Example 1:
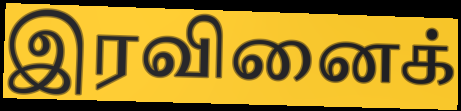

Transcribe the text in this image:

இரவினைக்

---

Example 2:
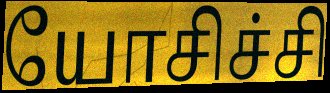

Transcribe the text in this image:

யோசிச்சி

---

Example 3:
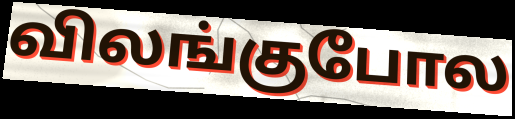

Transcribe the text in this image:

விலங்குபோல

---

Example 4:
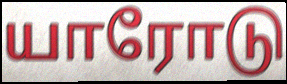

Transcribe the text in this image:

யாரோடு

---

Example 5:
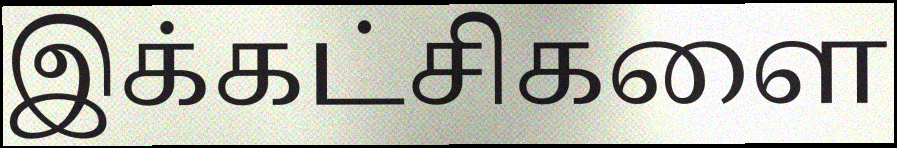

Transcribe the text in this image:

இக்கட்சிகளை